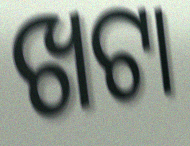
ଖଟା